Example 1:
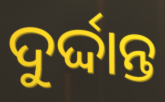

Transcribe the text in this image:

ଦୁର୍ଦ୍ଦାନ୍ତ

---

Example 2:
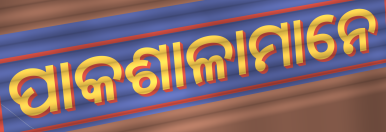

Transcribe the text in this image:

ପାକଶାଳାମାନେ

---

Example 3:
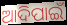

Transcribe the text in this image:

ଆଦିପାଇଁ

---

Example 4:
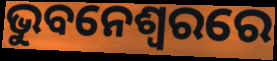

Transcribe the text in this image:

ଭୁବନେଶ୍ୱରରେ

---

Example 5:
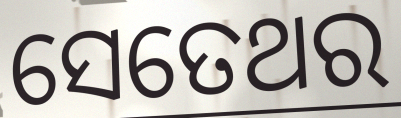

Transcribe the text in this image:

ସେତେଥର